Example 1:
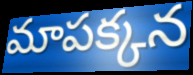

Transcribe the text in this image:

మాపక్కన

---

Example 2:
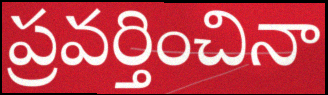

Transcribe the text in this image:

ప్రవర్తించినా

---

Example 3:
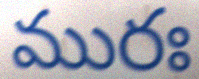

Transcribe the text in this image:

మురః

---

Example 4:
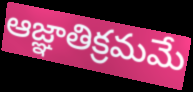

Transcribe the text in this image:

ఆజ్ఞాతిక్రమమే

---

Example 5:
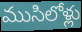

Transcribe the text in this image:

ముసిలోళ్లు